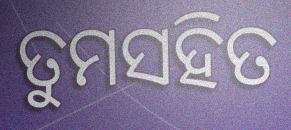
ତୁମସହିତ